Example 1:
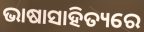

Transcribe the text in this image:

ଭାଷାସାହିତ୍ୟରେ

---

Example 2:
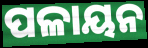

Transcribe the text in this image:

ପଳାୟନ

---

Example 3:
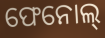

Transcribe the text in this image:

ଫେନୋଲ୍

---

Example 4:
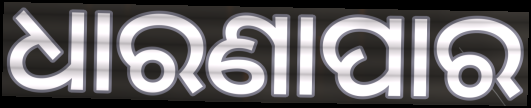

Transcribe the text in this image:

ଧାରଣାପାର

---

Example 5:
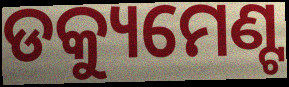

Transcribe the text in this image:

ଡକ୍ୟୁମେଣ୍ଟ